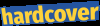
hardcover